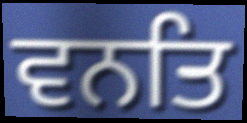
ਵਨਤਿ